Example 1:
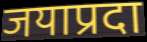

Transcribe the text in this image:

जयाप्रदा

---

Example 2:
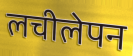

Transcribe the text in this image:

लचीलेपन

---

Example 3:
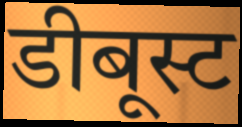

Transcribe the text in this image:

डीबूस्ट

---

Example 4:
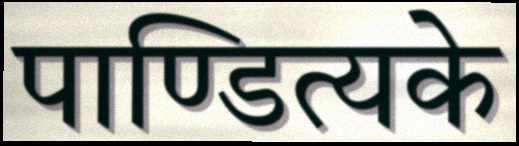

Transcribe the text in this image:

पाण्डित्यके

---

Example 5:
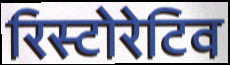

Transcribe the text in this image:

रिस्टोरेटिव